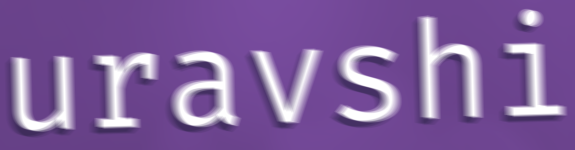
uravshi